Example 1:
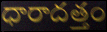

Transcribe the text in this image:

ధారాదత్తం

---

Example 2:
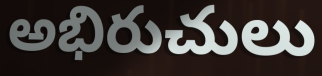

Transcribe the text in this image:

అభిరుచులు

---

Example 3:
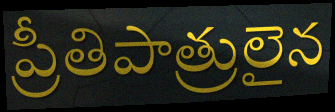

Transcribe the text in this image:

ప్రీతిపాత్రులైన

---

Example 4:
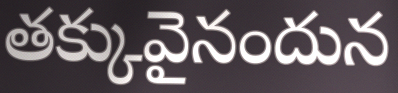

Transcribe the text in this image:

తక్కువైనందున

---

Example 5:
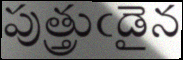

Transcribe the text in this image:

పుత్త్రుఁడైన